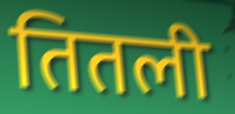
तितली